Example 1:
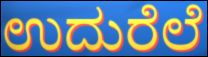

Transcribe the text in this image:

ಉದುರೆಲೆ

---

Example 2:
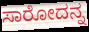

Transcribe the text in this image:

ಸಾರೋದನ್ನ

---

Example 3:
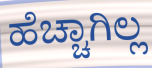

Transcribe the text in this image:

ಹೆಚ್ಚಾಗಿಲ್ಲ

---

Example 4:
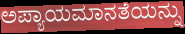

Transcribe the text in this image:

ಅಪ್ಯಾಯಮಾನತೆಯನ್ನು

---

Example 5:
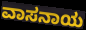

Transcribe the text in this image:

ವಾಸನಾಯ